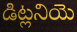
డిట్లనియె